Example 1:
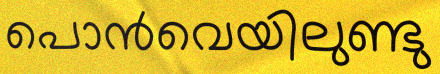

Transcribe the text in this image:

പൊൻവെയിലുണ്ടു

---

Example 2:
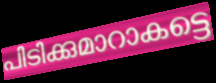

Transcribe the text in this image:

പിടിക്കുമാറാകട്ടെ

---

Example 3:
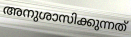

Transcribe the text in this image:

അനുശാസിക്കുന്നത്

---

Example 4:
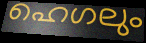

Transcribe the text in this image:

ഹെഗലും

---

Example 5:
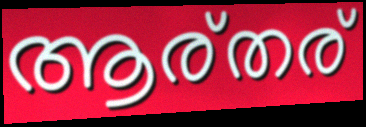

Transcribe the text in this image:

ആര്തര്